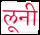
लूनी